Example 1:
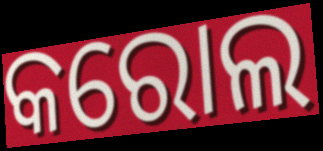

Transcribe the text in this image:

କରୋଲ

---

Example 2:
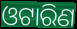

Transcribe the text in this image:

ଓଟାରିଣ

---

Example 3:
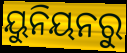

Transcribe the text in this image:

ୟୁନିୟନରୁ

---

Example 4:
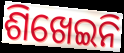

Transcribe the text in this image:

ଶିଖେଇନି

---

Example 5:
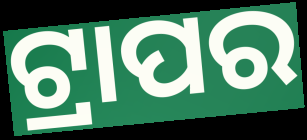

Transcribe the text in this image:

ଟ୍ରାପର